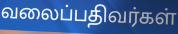
வலைப்பதிவர்கள்